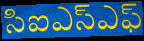
సిఐఎస్ఎఫ్